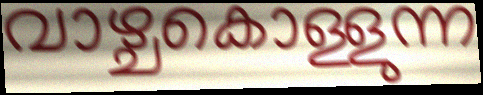
വാഴ്ചകൊള്ളുന്ന